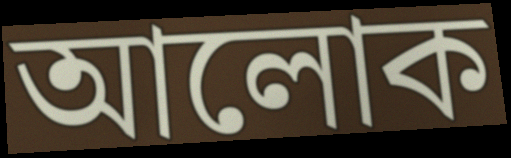
আলোক